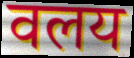
वलय